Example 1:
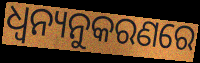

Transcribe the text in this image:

ଧ୍ଵନ୍ୟନୁକରଣରେ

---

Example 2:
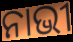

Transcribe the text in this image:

ନାଭୀ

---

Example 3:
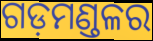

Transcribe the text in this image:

ଗଡ଼ମଣ୍ଡଳର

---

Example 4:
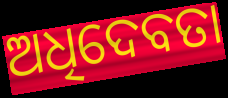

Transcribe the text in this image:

ଅଧିଦେବତା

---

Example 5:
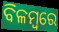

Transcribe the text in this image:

ବିଳମ୍ୱରେ